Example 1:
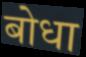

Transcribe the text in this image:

बोधा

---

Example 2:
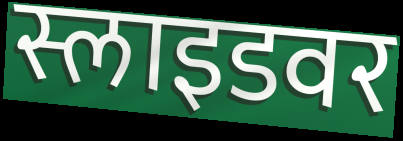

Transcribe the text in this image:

स्‍लाइडवर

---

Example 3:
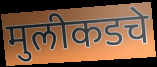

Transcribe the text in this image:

मुलीकडचे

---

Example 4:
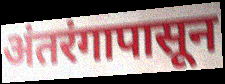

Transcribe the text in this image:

अंतरंगापासून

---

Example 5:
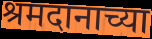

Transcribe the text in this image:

श्रमदानाच्या